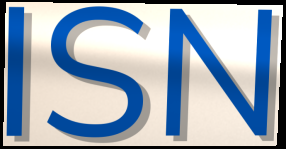
ISN